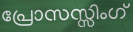
പ്രോസസ്സിംഗ്